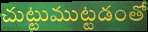
చుట్టుముట్టడంతో